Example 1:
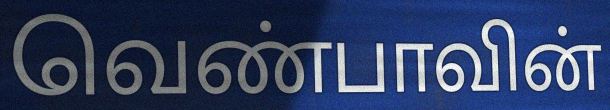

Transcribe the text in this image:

வெண்பாவின்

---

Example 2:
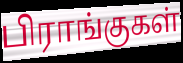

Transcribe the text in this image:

பிராங்குகள்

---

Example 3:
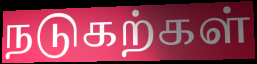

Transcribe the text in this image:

நடுகற்கள்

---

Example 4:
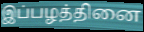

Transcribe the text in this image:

இப்பழத்தினை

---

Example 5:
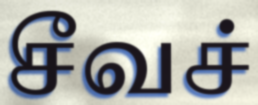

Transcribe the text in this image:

சீவச்